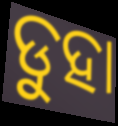
ଡୁହା